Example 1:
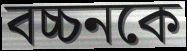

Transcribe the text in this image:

বচ্চনকে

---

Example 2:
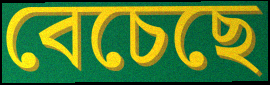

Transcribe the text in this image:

বেচেছে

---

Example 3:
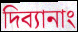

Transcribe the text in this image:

দিব্যানাং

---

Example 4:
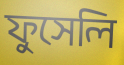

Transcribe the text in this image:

ফুসেলি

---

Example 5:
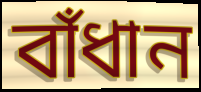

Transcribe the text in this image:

বাঁধান